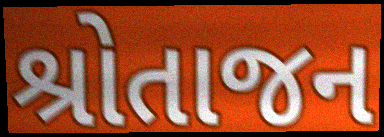
શ્રોતાજન